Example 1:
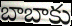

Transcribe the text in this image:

బాబాకు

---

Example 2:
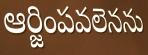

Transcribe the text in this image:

ఆర్జింపవలెనను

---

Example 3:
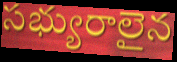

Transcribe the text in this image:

సభ్యురాలైన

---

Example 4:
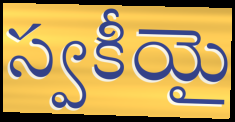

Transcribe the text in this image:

స్వకీయై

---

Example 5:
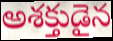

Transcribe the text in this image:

అశక్తుడైన